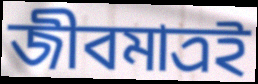
জীবমাত্রই